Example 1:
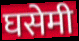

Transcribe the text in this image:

घसेमी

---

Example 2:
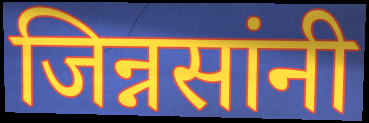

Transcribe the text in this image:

जिन्नसांनी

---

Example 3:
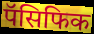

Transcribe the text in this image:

पॅसिफिक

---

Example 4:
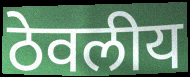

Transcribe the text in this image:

ठेवलीय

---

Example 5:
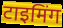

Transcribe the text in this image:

टाइमिंग